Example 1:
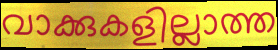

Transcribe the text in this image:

വാക്കുകളില്ലാത്ത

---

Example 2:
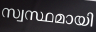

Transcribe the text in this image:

സ്വസ്ഥമായി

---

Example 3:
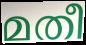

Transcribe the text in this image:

മതീ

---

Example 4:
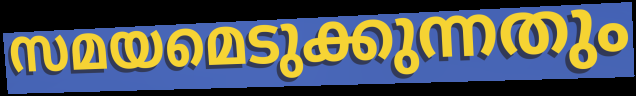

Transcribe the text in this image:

സമയമെടുക്കുന്നതും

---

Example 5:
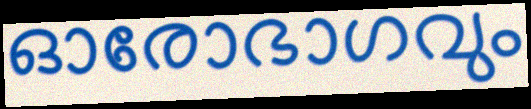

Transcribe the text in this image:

ഓരോഭാഗവും